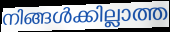
നിങ്ങൾക്കില്ലാത്ത